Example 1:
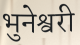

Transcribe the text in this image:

भुनेश्वरी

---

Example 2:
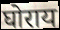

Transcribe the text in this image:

घोराय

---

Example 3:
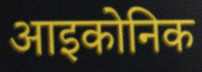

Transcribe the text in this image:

आइकोनिक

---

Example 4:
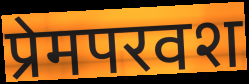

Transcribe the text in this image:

प्रेमपरवश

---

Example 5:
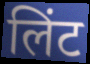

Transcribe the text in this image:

लिंट